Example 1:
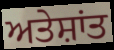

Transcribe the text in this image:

ਅਤੇਸ਼ਾਂਤ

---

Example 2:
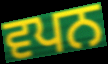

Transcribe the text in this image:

ਵਪਨ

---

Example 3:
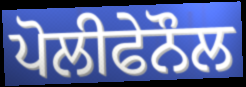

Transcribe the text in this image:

ਪੋਲੀਫੇਨੌਲ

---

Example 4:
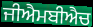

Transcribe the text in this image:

ਜੀਐਮਬੀਐਚ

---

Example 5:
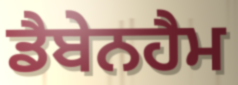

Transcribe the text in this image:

ਡੈਬੇਨਹੈਮ